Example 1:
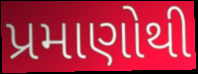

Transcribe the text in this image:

પ્રમાણોથી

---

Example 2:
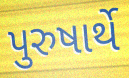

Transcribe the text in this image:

પુરુષાર્થે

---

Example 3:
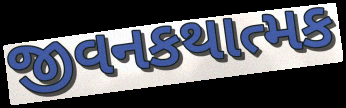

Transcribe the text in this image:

જીવનકથાત્મક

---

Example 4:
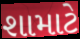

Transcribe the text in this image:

શામાટે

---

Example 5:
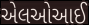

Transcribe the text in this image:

એલઓઆઈ